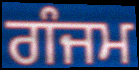
ਗੰਜਮ